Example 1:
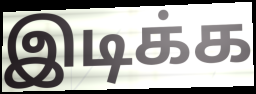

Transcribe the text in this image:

இடிக்க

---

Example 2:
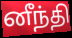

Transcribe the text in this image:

னீந்தி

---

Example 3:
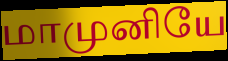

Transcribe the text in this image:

மாமுனியே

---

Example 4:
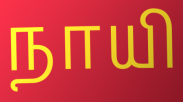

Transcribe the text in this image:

நாயி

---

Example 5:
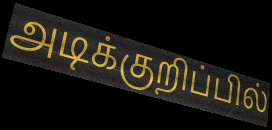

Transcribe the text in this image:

அடிக்குறிப்பில்